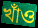
খাঁও